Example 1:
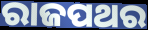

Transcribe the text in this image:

ରାଜପଥର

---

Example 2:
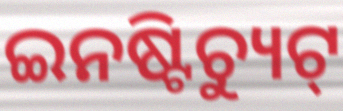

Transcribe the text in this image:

ଇନଷ୍ଟିଚ୍ୟୁଟ୍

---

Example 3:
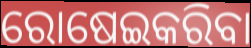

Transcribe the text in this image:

ରୋଷେଇକରିବା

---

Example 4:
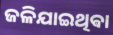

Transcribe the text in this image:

ଜଳିଯାଇଥିଵା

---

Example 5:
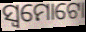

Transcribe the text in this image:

ସ୍ୱମୋଟୋ